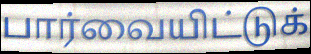
பார்வையிட்டுக்